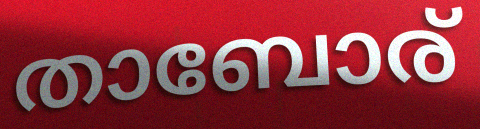
താബോര്